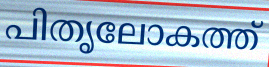
പിതൃലോകത്ത്